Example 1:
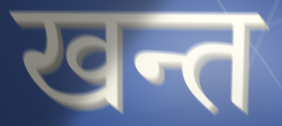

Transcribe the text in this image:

खन्त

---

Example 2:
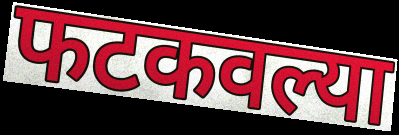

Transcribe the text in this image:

फटकवल्या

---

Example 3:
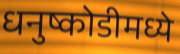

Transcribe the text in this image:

धनुष्कोडीमध्ये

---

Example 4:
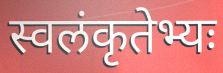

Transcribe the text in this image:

स्वलंकृतेभ्यः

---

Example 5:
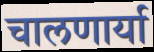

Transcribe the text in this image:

चालणार्या